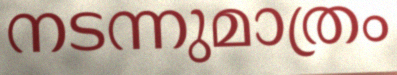
നടന്നുമാത്രം